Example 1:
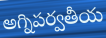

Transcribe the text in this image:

అగ్నిపర్వతీయ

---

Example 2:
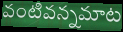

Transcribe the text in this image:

వంటివన్నమాట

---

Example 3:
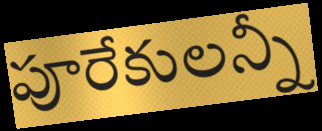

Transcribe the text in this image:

పూరేకులన్నీ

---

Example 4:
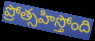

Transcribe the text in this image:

ప్రోత్సహిస్తోంది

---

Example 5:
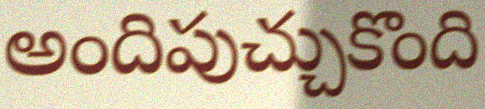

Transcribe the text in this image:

అందిపుచ్చుకొంది